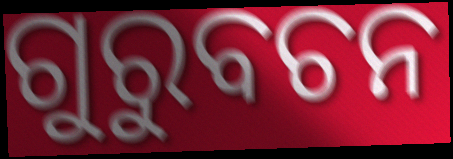
ଗୁରୁବଚନ